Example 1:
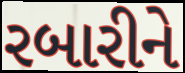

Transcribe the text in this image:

રબારીને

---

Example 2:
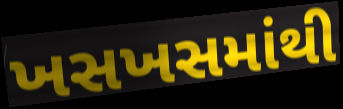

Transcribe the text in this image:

ખસખસમાંથી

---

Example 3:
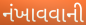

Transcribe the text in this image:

નંખાવવાની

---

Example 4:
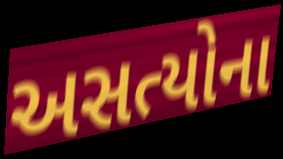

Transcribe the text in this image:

અસત્યોના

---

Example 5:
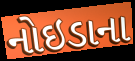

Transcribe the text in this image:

નોઇડાના